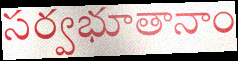
సర్వభూతానాం